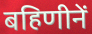
बहिणीनें